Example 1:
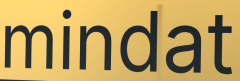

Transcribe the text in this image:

mindat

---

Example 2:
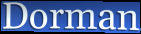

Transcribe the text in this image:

Dorman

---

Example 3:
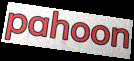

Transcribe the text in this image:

pahoon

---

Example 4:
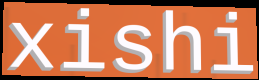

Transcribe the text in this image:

xishi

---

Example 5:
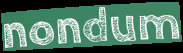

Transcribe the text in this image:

nondum